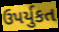
ઉપર્યુકત